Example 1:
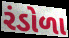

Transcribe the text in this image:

રંડોળા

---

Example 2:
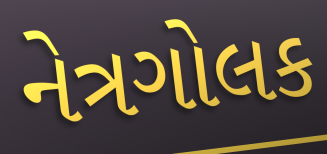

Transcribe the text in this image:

નેત્રગોલક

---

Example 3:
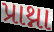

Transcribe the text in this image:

પ્રાથ્ના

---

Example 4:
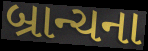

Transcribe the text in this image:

બ્રાન્ચના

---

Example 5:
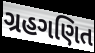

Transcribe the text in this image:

ગ્રહગણિત